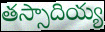
తస్సాదియ్య